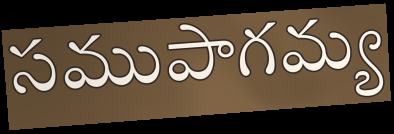
సముపాగమ్య